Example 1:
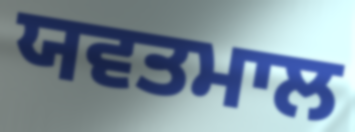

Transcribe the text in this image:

ਯਵਤਮਾਲ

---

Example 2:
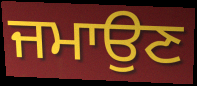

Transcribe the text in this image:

ਜਮਾਉਣ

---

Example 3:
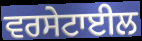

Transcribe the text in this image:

ਵਰਸੇਟਾਈਲ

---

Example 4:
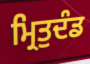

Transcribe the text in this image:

ਮ੍ਰਿਤੁਦੰਡ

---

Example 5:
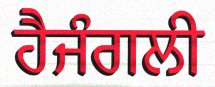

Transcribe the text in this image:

ਹੈਜੰਗਲੀ